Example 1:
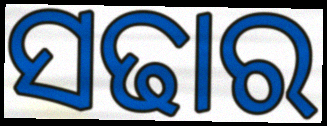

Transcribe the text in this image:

ସଢାର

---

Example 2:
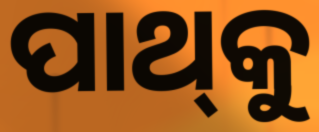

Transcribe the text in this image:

ପାଥ୍‌କୁ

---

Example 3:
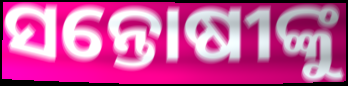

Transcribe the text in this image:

ସନ୍ତୋଷୀଙ୍କୁ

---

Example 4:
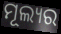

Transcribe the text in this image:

ମୂଲ୍ଯର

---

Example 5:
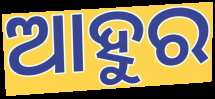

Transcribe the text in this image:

ଆହୁର